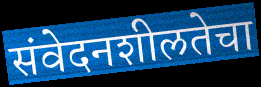
संवेदनशीलतेचा